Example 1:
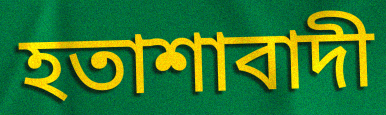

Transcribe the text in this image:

হতাশাবাদী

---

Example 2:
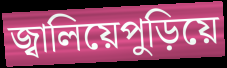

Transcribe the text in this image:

জ্বালিয়েপুড়িয়ে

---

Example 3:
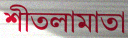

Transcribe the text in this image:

শীতলামাতা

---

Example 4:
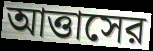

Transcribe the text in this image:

আত্তাসের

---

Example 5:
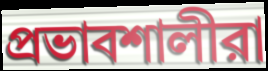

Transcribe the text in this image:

প্রভাবশালীরা